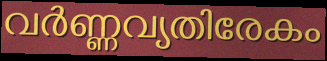
വർണ്ണവ്യതിരേകം